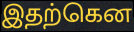
இதற்கென